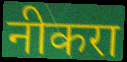
नीकरा